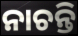
ନାଚନ୍ତି